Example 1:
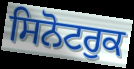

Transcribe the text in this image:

ਸਿਨੋਟਰੁਕ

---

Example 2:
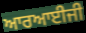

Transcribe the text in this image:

ਆਰਆਈਜੀ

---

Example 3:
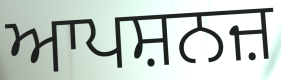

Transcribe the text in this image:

ਆਪਸ਼ਨਜ਼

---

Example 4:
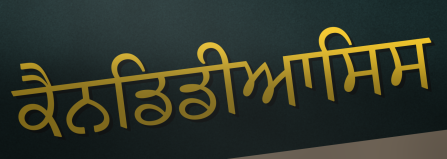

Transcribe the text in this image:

ਕੈਨਡਿਡੀਆਸਿਸ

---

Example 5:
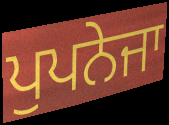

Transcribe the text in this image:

ਪੁਪਨੇਜਾ